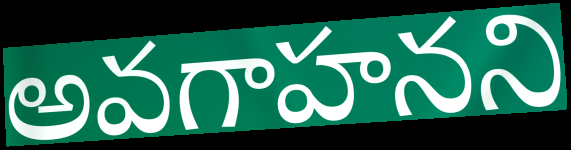
అవగాహనని